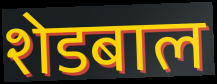
शेडबाल